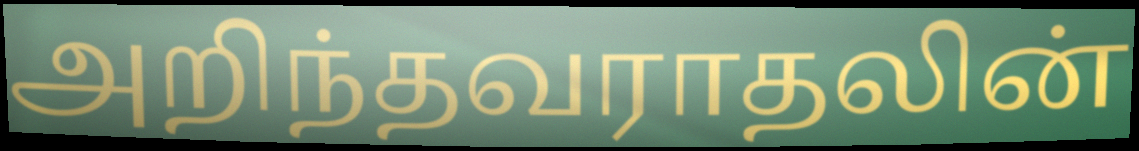
அறிந்தவராதலின்